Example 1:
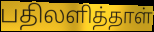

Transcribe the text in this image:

பதிலளித்தாள்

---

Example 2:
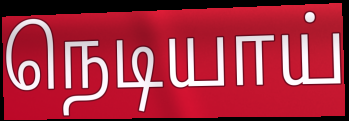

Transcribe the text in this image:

நெடியாய்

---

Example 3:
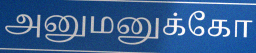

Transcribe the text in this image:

அனுமனுக்கோ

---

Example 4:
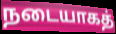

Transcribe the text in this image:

நடையாகத்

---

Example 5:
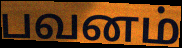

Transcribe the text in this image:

பவனம்